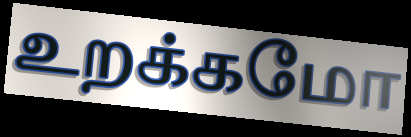
உறக்கமோ